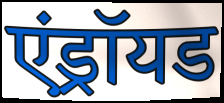
एंड्रॉयड